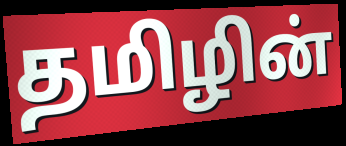
தமிழின்